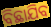
ବିଛାଯିବ